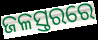
ଜଳସ୍ତରରେ